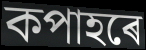
কপাহৰে